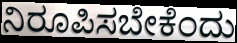
ನಿರೂಪಿಸಬೇಕೆಂದು